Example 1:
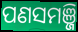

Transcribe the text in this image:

ପଣସମଞ୍ଜି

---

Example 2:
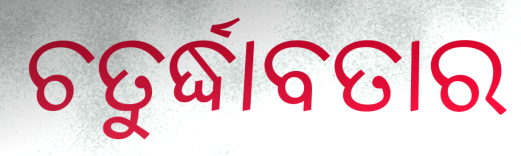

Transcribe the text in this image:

ଚତୁର୍ଦ୍ଧାବତାର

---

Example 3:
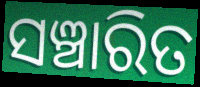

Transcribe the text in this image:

ସଞ୍ଚାରିତ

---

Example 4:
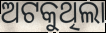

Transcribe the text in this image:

ଅଟକୁଥିଲା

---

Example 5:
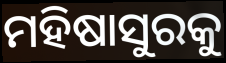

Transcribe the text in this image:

ମହିଷାସୁରକୁ